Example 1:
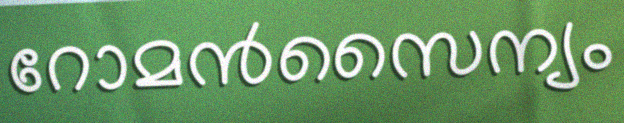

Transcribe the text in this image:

റോമൻസൈന്യം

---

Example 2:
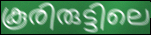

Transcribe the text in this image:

കൂരിരുട്ടിലെ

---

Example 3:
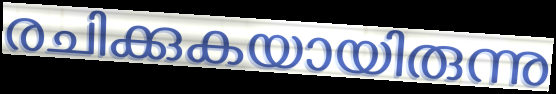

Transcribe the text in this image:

രചിക്കുകയായിരുന്നു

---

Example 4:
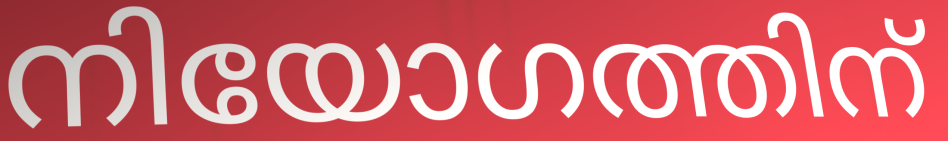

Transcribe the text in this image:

നിയോഗത്തിന്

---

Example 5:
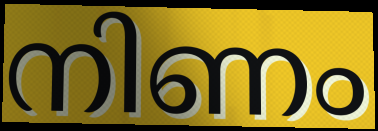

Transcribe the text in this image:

നിണം